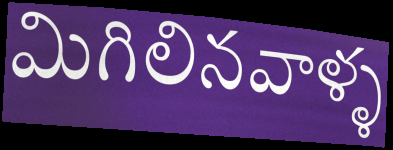
మిగిలినవాళ్ళ